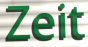
Zeit